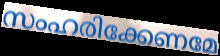
സംഹരിക്കേണമേ